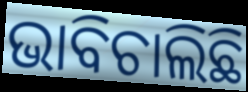
ଭାବିଚାଲିଛି